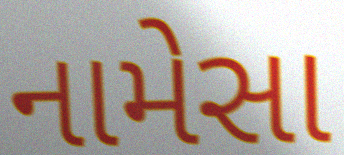
નામેસા